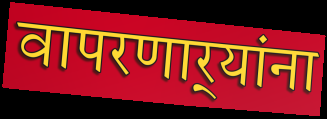
वापरणार्यांना